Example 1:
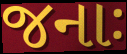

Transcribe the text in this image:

જનાઃ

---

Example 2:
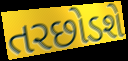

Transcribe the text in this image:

તરછોડશે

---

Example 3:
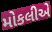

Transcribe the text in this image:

મોકલીએ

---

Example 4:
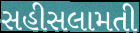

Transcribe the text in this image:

સહીસલામતી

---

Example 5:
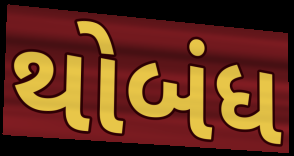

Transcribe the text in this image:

થોબંધ